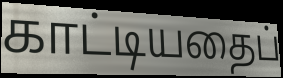
காட்டியதைப்